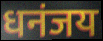
धनंजय